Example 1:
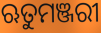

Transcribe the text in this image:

ଋତୁମଞ୍ଜରୀ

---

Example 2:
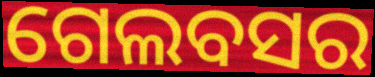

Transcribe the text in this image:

ଗେଲବସର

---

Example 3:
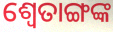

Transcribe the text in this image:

ଶ୍ୱେତାଙ୍ଗଙ୍କ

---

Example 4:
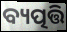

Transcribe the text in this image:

ବ୍ୟତ୍ପତ୍ତି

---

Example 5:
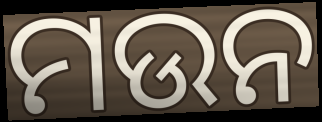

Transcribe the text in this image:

ମଉନ